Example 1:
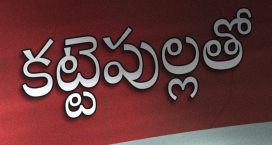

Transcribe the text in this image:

కట్టెపుల్లతో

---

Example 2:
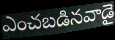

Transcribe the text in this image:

ఎంచబడినవాడై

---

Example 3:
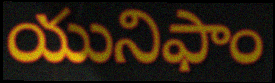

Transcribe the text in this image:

యునిఫాం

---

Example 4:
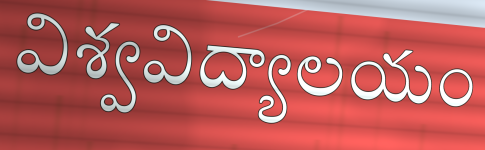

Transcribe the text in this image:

విశ్వవిద్యాలయం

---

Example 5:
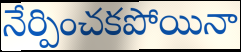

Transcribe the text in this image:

నేర్పించకపోయినా